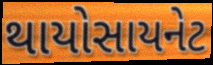
થાયોસાયનેટ